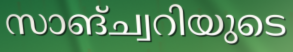
സാങ്ച്വറിയുടെ